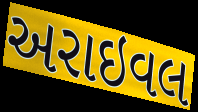
અરાઇવલ